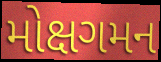
મોક્ષગમન